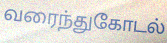
வரைந்துகோடல்